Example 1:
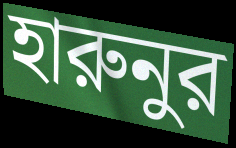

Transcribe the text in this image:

হারুনুর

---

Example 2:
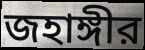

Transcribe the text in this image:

জহাঙ্গীর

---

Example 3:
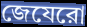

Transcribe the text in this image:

জেযেরো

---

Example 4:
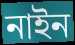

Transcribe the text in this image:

নাইন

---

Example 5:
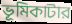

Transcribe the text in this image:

ভূমিকাটার